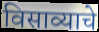
विसाव्याचे